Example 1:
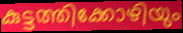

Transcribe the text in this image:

കുട്ടത്തിക്കോഴിയും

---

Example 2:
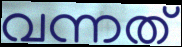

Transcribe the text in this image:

വന്നത്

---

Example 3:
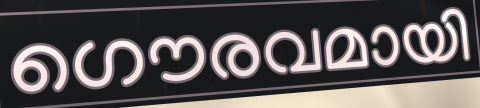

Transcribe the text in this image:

ഗൌരവമായി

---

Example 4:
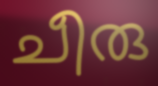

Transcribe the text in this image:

ചീരു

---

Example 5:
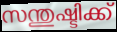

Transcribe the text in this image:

സന്തുഷ്ടിക്ക്